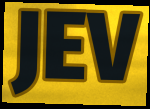
JEV